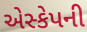
એસ્કેપની